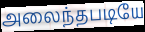
அலைந்தபடியே